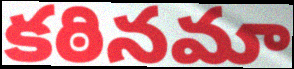
కఠినమా